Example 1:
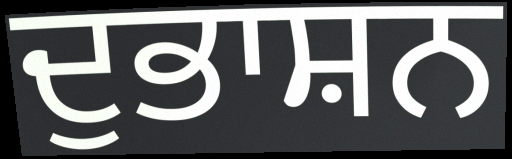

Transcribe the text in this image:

ਦੁਭਾਸ਼ਨ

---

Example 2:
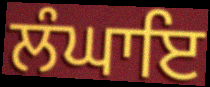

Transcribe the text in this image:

ਲੰਘਾਇ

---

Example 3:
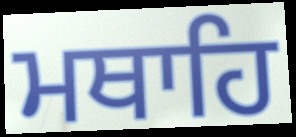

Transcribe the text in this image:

ਮਥਾਹਿ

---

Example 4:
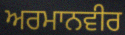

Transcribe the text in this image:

ਅਰਮਾਨਵੀਰ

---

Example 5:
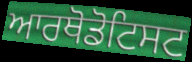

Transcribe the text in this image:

ਆਰਥੋਡੋਟਿਸਟ